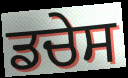
ਡਚੇਸ